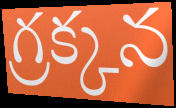
గ్రక్కన